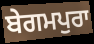
ਬੇਗਮਪੁਰਾ